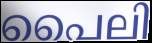
പൈലി